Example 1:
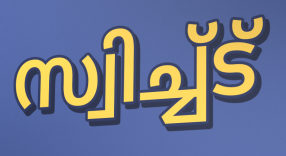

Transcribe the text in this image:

സ്വിച്ച്ട്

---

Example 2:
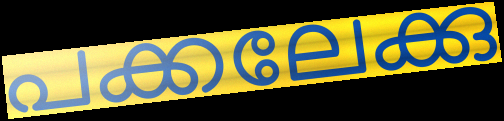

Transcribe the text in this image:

പക്കലേക്കു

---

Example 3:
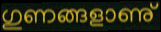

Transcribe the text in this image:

ഗുണങ്ങളാണു്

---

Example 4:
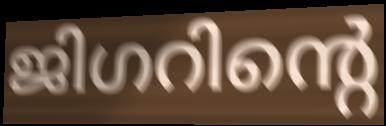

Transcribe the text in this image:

ജിഗറിന്റെ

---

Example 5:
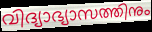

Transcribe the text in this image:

വിദ്യാഭ്യാസത്തിനും